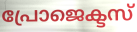
പ്രോജെക്ടസ്